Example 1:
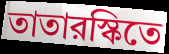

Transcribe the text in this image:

তাতারস্কিতে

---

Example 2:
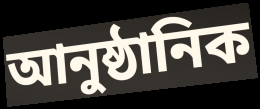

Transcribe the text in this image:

আনুষ্ঠানিক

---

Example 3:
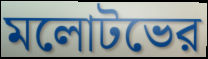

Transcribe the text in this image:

মলোটভের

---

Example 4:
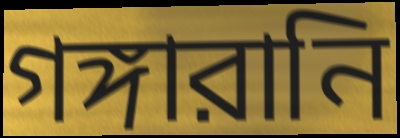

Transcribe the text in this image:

গঙ্গারানি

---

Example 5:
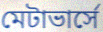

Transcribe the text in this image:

মেটাভার্সে